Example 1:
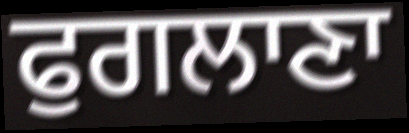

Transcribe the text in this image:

ਫੁਗਲਾਣਾ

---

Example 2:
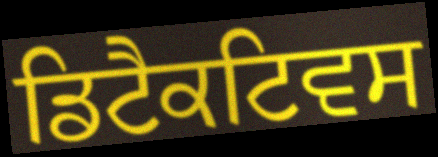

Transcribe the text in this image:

ਡਿਟੈਕਟਿਵਸ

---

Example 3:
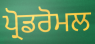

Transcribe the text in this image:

ਪ੍ਰੋਡਰੋਮਲ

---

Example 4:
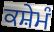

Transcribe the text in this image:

ਕਸ਼ੇਮੰ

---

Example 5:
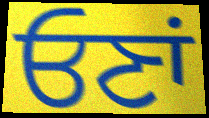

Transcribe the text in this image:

ਓਣਾਂ